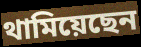
থামিয়েছেন